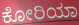
ಕೋರಿಯಾ